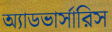
অ্যাডভার্সারিস